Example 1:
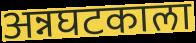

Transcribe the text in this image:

अन्नघटकाला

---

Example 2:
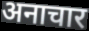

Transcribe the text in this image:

अनाचार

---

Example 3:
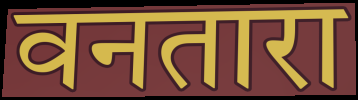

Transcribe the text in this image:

वनतारा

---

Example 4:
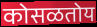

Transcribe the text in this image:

कोसळतोय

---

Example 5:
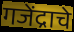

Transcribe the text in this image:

गजेंद्राचे